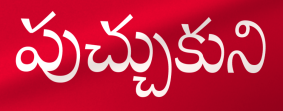
పుచ్చుకుని